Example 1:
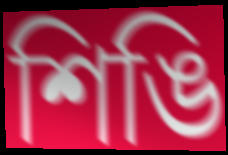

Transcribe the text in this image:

শিঙি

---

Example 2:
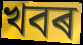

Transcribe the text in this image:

খবৰ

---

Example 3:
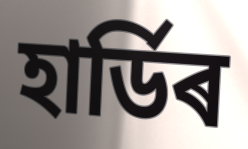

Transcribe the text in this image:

হাৰ্ডিৰ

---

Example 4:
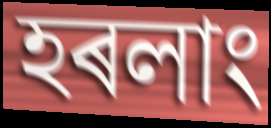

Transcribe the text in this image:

হৰলাং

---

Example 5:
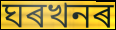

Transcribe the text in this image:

ঘৰখনৰ